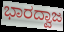
ಭಾರದ್ವಾಜ